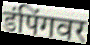
डंपिंगवर